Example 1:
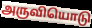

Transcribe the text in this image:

அருவியொடு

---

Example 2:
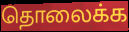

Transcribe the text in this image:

தொலைக்க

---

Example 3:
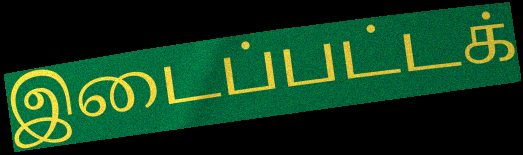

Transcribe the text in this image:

இடைப்பட்டக்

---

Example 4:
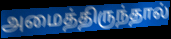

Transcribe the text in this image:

அமைத்திருந்தால்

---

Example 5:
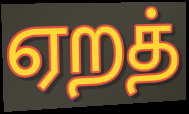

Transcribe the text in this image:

ஏறத்